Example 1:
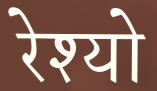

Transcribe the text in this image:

रेश्यो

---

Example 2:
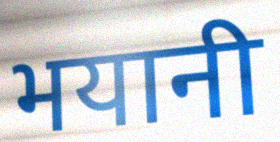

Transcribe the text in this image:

भयानी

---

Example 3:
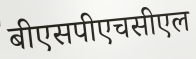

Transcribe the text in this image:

बीएसपीएचसीएल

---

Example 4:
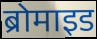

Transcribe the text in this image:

ब्रोमाइड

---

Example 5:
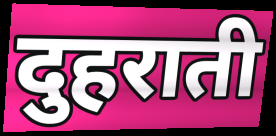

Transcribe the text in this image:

दुहराती